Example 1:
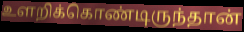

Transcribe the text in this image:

உளறிக்கொண்டிருந்தான்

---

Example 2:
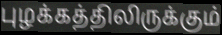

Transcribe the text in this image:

புழக்கத்திலிருக்கும்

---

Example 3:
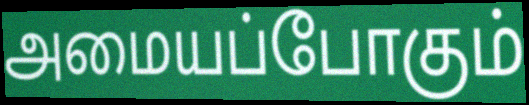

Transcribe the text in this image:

அமையப்போகும்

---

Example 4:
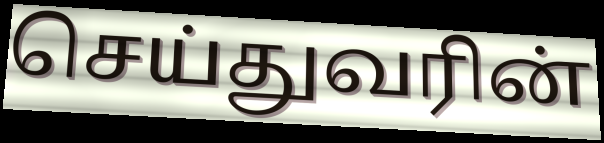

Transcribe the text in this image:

செய்துவரின்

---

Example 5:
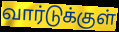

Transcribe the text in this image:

வார்டுக்குள்